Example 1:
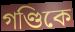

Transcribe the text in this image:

গণ্ডিকে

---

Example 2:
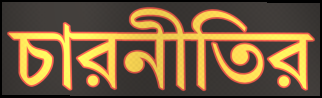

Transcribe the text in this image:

চারনীতির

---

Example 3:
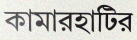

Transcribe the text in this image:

কামারহাটির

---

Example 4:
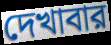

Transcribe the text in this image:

দেখাবার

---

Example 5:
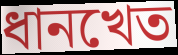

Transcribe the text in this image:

ধানখেত